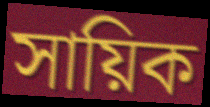
সায়িক